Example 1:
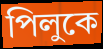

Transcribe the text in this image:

পিলুকে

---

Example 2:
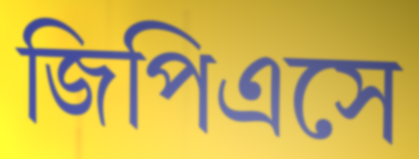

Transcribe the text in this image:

জিপিএসে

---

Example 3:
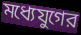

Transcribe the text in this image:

মধ্যেযুগের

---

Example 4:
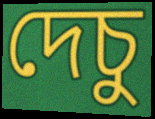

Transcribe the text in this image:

দেচু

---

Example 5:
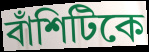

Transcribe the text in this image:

বাঁশিটিকে